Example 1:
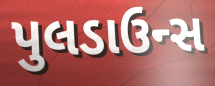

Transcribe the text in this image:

પુલડાઉન્સ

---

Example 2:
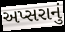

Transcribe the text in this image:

અપ્સરાનું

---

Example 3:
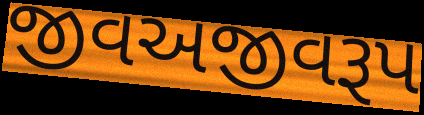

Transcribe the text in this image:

જીવઅજીવરૂપ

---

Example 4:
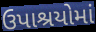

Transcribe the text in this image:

ઉપાશ્રયોમાં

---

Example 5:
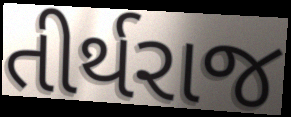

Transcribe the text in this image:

તીર્થરાજ